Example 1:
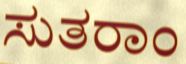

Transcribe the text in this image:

ಸುತರಾಂ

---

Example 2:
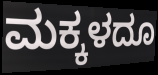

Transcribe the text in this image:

ಮಕ್ಕಳದೂ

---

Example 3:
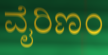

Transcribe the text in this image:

ವೈರಿಣಂ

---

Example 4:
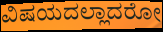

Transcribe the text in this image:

ವಿಷಯದಲ್ಲಾದರೋ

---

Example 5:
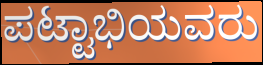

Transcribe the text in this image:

ಪಟ್ಟಾಭಿಯವರು